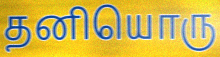
தனியொரு